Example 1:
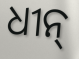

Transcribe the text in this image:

ଧୀନ୍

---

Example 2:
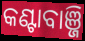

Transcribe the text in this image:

କଣ୍ଟାବାଞ୍ଜି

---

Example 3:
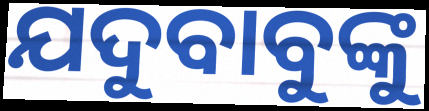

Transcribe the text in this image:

ଯଦୁବାବୁଙ୍କୁ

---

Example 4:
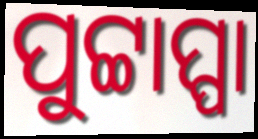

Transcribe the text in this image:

ପୁଟ୍ଟାପ୍ପା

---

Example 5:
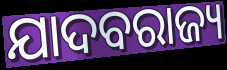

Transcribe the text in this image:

ଯାଦବରାଜ୍ୟ